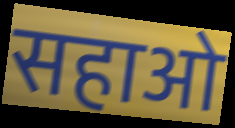
सहाओ